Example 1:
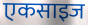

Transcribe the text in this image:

एकसाइज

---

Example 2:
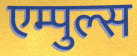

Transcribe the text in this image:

एम्पुल्स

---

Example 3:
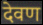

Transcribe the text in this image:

देवण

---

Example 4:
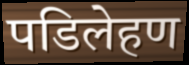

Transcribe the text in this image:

पडिलेहण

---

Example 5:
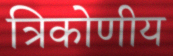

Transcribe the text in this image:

त्रिकोणीय